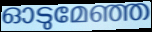
ഓടുമേഞ്ഞ